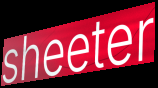
sheeter